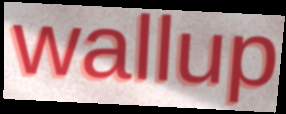
wallup